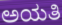
ಅಯತಿ